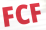
FCF